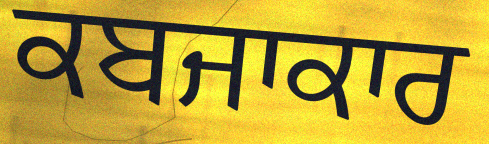
ਕਬਜਾਕਾਰ